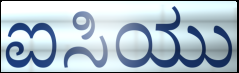
ಐಸಿಯು